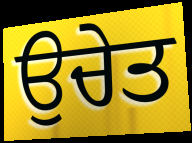
ਉਚੇਤ